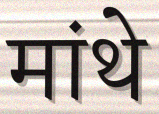
मांथे